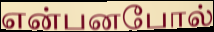
என்பனபோல்